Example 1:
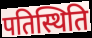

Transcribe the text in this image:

पतिस्थिति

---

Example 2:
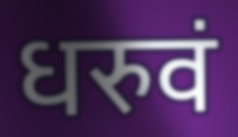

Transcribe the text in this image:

धरुवं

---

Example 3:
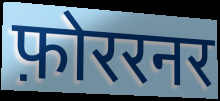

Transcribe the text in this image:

फ़ोररनर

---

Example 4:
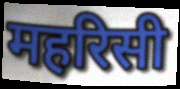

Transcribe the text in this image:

महरिसी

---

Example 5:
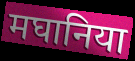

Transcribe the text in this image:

मघानिया